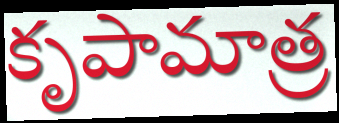
కృపామాత్ర